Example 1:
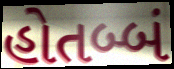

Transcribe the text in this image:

હોતબ્બં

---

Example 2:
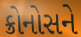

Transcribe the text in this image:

ક્રોનોસને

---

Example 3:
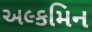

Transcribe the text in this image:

અલ્કમિન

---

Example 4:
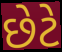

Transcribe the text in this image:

છેટે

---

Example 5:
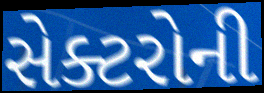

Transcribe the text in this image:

સેક્ટરોની